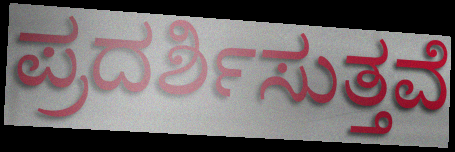
ಪ್ರದರ್ಶಿಸುತ್ತವೆ